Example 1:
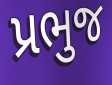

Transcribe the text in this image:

પ્રભુજ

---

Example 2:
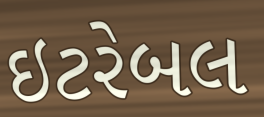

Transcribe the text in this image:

ઇટરેબલ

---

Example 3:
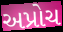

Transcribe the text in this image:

અપ્રોચ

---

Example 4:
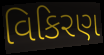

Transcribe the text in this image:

વિકિરણ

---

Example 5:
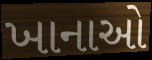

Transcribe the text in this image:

ખાનાઓ